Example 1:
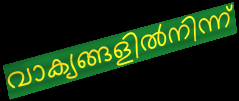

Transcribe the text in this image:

വാക്യങ്ങളിൽനിന്ന്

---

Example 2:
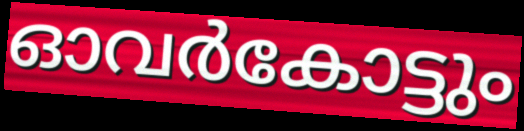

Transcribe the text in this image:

ഓവർകോട്ടും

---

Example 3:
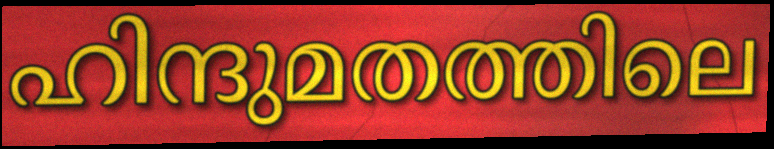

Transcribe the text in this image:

ഹിന്ദുമതത്തിലെ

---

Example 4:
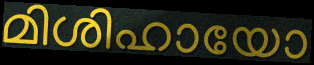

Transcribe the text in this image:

മിശിഹായോ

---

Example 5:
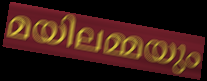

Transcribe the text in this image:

മയിലമ്മയും